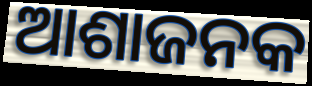
ଆଶାଜନକ